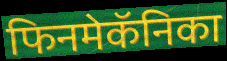
फिनमेकॅनिका